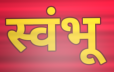
स्वंभू